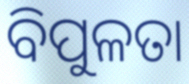
ବିପୁଳତା